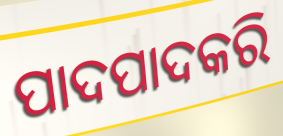
ପାଦପାଦକରି